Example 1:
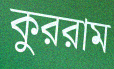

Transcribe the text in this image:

কুররাম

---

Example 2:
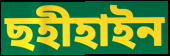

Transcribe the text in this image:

ছহীহাইন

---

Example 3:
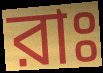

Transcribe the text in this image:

রাঃ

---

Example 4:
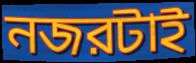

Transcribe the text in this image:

নজরটাই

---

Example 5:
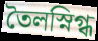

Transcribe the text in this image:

তৈলস্নিগ্ধ